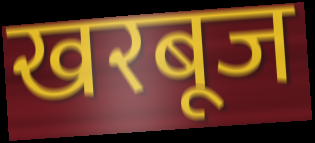
खरबूज